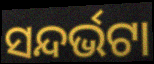
ସନ୍ଦର୍ଭଟା